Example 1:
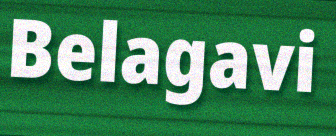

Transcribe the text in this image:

Belagavi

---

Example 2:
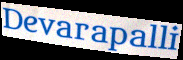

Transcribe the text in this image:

Devarapalli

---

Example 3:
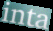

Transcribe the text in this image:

inta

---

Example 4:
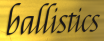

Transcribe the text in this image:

ballistics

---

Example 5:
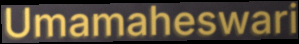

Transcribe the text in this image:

Umamaheswari